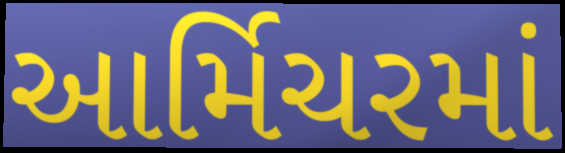
આર્મિચરમાં